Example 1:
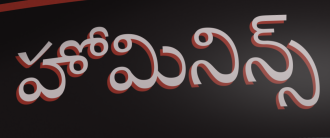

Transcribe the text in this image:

హోమినిన్స్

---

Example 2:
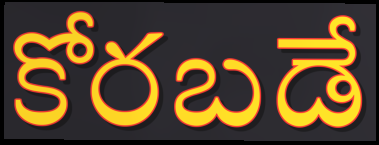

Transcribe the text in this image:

కోరబడే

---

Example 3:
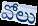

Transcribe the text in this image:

వోలు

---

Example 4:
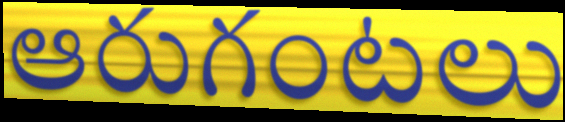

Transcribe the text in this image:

ఆరుగంటలు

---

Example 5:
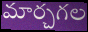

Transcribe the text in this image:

మార్చగల